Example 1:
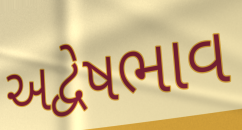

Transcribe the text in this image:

અદ્વેષભાવ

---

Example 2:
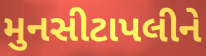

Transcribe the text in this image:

મુનસીટાપલીને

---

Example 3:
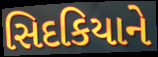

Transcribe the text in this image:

સિદકિયાને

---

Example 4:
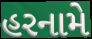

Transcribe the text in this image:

હરનામે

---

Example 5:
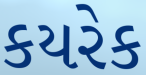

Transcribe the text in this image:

કયરેક